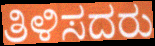
ತಿಳಿಸದರು